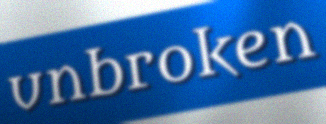
unbroken